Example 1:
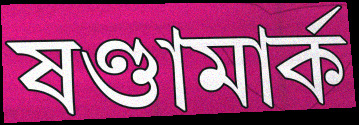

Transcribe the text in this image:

ষণ্ডামার্ক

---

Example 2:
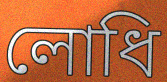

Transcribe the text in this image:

লোধি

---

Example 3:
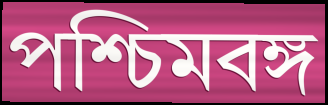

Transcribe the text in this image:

পশ্চিমবঙ্গ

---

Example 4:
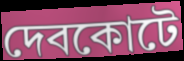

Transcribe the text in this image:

দেবকোটে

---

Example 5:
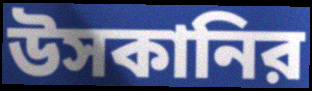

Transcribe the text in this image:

উসকানির